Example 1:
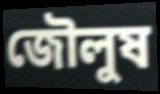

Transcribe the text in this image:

জৌলুষ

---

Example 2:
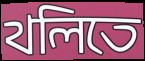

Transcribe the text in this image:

থলিতে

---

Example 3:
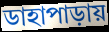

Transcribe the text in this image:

ডাহাপাড়ায়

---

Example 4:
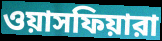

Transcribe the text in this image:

ওয়াসফিয়ারা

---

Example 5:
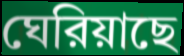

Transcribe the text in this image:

ঘেরিয়াছে